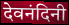
देवनंदिनी